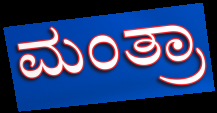
ಮಂತ್ರಾ